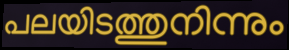
പലയിടത്തുനിന്നും